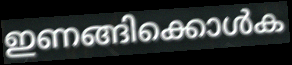
ഇണങ്ങിക്കൊൾക